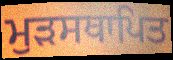
ਮੁੜਸਥਾਪਿਤ